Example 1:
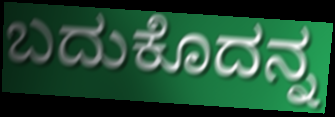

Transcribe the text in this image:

ಬದುಕೊದನ್ನ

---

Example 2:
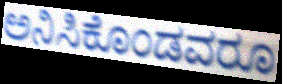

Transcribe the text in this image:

ಅನಿಸಿಕೊಂಡವರೂ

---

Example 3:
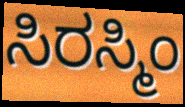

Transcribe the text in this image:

ಸಿರಸ್ಮಿಂ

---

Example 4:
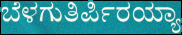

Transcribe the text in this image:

ಬೆಳಗುತಿರ್ಪಿರಯ್ಯಾ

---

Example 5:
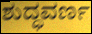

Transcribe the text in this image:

ಶುದ್ಧವರ್ಣ